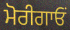
ਮੋਰੀਗਾਓਂ